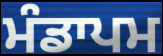
ਮੰਡਾਪਮ